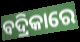
ବଦ୍ରିକାରେ